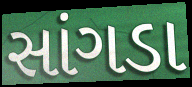
સાંગડા